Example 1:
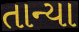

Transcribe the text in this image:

તાન્યા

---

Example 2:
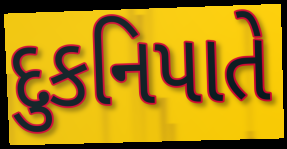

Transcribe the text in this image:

દુકનિપાતે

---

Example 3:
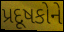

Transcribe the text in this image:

પ્રદૂષકોને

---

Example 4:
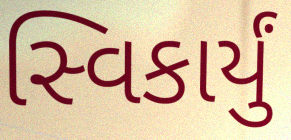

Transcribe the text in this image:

સ્વિકાર્યું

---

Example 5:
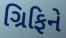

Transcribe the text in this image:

ગ્રિફિને